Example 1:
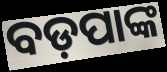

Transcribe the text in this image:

ବଡ଼ପାଙ୍କ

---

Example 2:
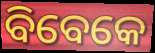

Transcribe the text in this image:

ବିବେକେ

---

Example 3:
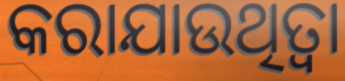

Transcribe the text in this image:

କରାଯାଉଥିତ୍ବା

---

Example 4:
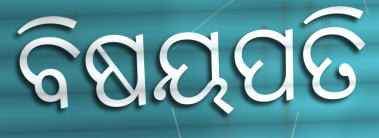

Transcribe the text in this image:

ବିଷୟପତି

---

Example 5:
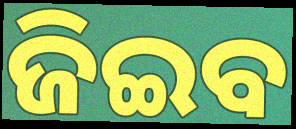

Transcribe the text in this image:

ଜିଇବ